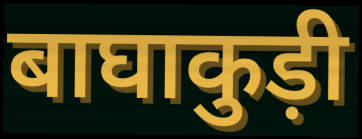
बाघाकुड़ी